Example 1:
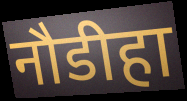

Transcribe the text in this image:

नौडीहा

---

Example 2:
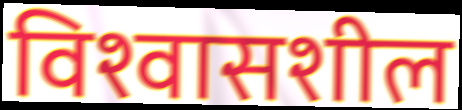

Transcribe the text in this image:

विश्वासशील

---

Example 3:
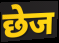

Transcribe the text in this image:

छेज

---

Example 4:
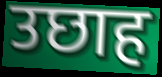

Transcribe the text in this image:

उछाह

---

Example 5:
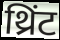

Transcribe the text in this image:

थ्रिंट